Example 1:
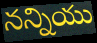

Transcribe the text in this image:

నన్నియు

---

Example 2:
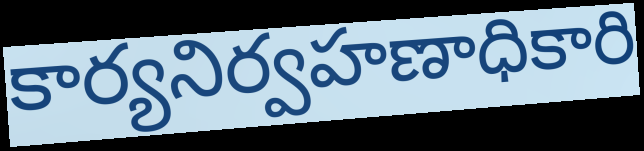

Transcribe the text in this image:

కార్యనిర్వహణాధికారి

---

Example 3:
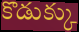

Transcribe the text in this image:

కొడుక్కు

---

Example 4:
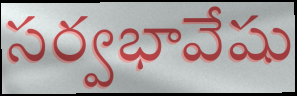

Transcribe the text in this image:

సర్వభావేషు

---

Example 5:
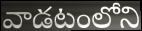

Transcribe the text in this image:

వాడటంలోని